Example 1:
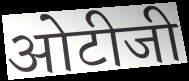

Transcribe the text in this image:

ओटीजी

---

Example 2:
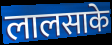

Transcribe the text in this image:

लालसाके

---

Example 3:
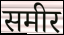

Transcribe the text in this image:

समीर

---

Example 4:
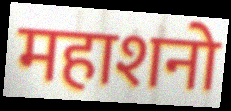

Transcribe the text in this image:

महाशनो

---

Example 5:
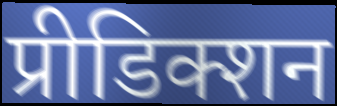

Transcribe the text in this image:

प्रीडिक्शन